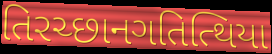
તિરચ્છાનગતિત્થિયા